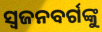
ସ୍ୱଜନବର୍ଗଙ୍କୁ